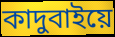
কাদুবাইয়ে